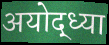
अयोद्ध्या